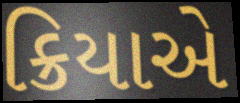
ક્રિયાએ